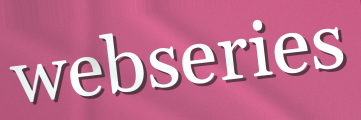
webseries